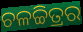
ଚଳଚ୍ଚିତ୍ରର